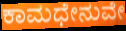
ಕಾಮಧೇನುವೇ